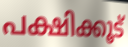
പക്ഷിക്കൂട്